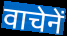
वाचेनें